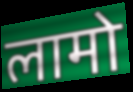
लामो